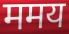
ममय